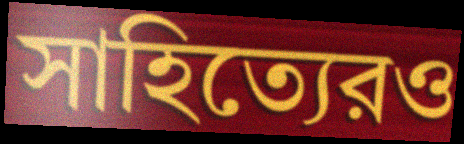
সাহিত্যেরও